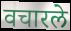
वचारले